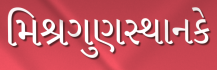
મિશ્રગુણસ્થાનકે